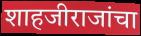
शाहजीराजांचा